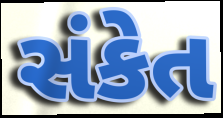
સંકેત